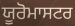
ਯੂਰੋਮਾਸਟਰ